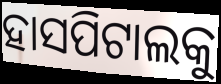
ହାସପିଟାଲକୁ